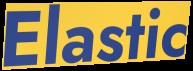
Elastic